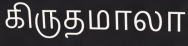
கிருதமாலா